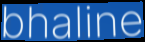
bhaline